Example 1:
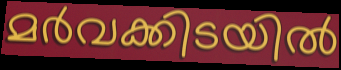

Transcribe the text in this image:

മർവക്കിടയിൽ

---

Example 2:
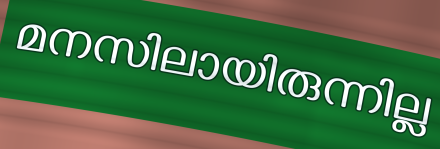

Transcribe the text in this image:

മനസിലായിരുന്നില്ല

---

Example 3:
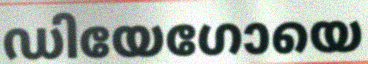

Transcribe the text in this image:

ഡിയേഗോയെ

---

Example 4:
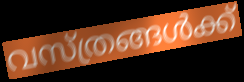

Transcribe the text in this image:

വസ്ത്രങ്ങൾക്ക്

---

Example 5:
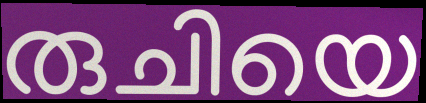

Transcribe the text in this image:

രുചിയെ